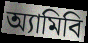
অ্যামিবি